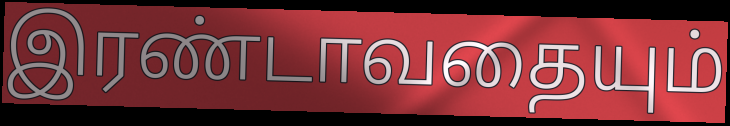
இரண்டாவதையும்